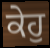
ਕੇਹੁ